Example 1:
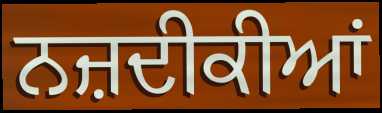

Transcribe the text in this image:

ਨਜ਼ਦੀਕੀਆਂ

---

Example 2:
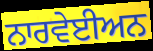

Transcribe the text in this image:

ਨਾਰਵੇਈਅਨ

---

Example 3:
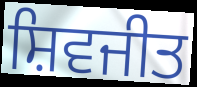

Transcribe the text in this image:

ਸ਼ਿਵਜੀਤ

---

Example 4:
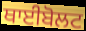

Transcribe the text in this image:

ਥਾਈਬੋਲਟ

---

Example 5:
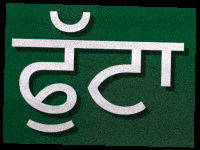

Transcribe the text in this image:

ਫੁੱਟਾ